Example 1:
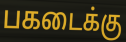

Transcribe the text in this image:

பகடைக்கு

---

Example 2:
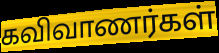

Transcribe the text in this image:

கவிவாணர்கள்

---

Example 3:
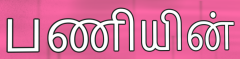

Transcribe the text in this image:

பணியின்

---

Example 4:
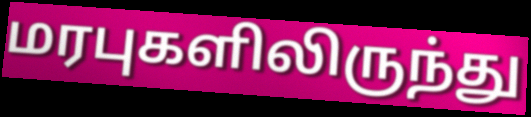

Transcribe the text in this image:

மரபுகளிலிருந்து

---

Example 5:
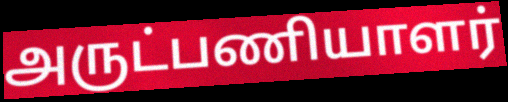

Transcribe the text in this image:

அருட்பணியாளர்